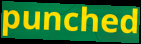
punched